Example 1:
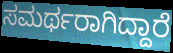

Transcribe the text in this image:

ಸಮರ್ಥರಾಗಿದ್ದಾರೆ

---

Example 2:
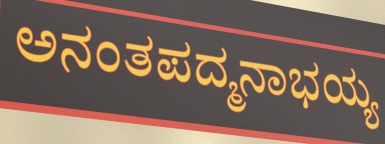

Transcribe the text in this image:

ಅನಂತಪದ್ಮನಾಭಯ್ಯ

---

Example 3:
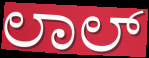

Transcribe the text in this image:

ಲಾಲ್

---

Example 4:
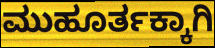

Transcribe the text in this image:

ಮುಹೂರ್ತಕ್ಕಾಗಿ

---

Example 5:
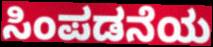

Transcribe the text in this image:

ಸಿಂಪಡನೆಯ